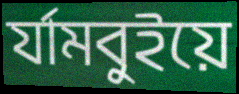
র্যামবুইয়ে